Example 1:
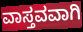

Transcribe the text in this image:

ವಾಸ್ತವವಾಗಿ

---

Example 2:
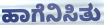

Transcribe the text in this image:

ಹಾಗೆನಿಸಿತು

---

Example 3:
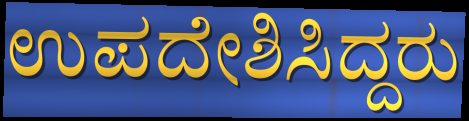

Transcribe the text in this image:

ಉಪದೇಶಿಸಿದ್ದರು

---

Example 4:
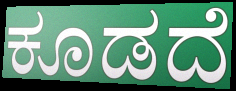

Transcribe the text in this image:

ಕೂಡದೆ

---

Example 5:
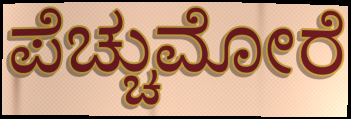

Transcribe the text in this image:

ಪೆಚ್ಚುಮೋರೆ